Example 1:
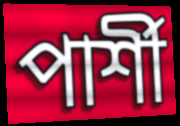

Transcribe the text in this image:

পার্শী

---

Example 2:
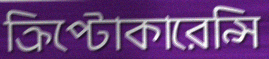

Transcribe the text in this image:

ক্রিপ্টোকারেন্সি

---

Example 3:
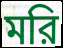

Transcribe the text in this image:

মরি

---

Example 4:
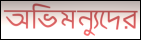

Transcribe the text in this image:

অভিমন্যুদের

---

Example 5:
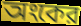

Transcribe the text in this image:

অংকের